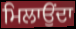
ਮਿਲਾਉਂਦਾ